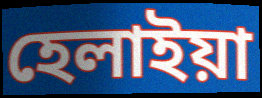
হেলাইয়া